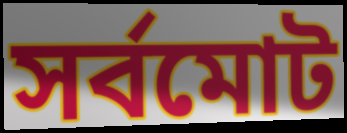
সর্বমোট